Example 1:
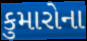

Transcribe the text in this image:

કુમારોના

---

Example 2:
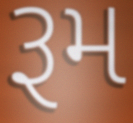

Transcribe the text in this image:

રૂમ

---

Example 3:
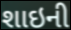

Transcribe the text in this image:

શાઇની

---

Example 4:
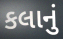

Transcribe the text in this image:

કલાનું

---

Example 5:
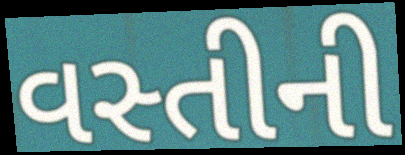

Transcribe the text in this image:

વસ્તીની